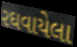
રઘવાયેલા